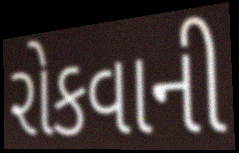
રોકવાની